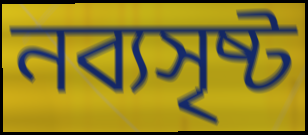
নব্যসৃষ্ট